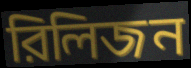
রিলিজন